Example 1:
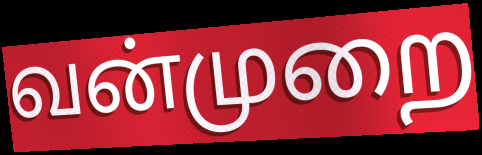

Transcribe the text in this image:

வன்முறை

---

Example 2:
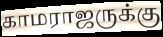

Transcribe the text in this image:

காமராஜருக்கு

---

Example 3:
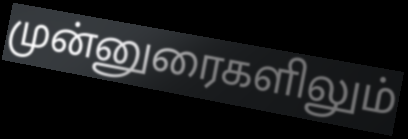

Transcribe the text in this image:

முன்னுரைகளிலும்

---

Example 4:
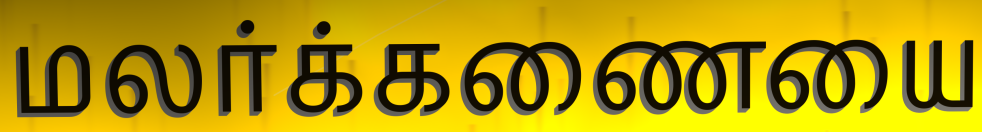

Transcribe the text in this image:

மலர்க்கணையை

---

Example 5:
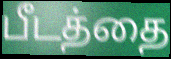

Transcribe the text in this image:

பீடத்தை